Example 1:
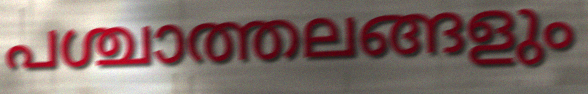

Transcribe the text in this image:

പശ്ചാത്തലങ്ങളും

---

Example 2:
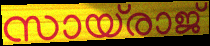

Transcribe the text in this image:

സായ്രാജ്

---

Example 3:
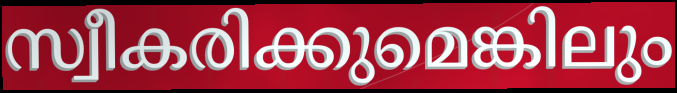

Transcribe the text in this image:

സ്വീകരിക്കുമെങ്കിലും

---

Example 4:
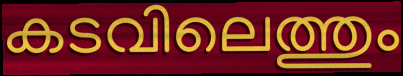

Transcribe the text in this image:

കടവിലെത്തും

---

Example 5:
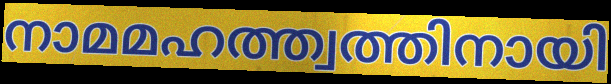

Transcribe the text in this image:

നാമമഹത്ത്വത്തിനായി